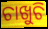
ଚାଖୁଚି